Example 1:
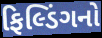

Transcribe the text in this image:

ફિલ્ડિંગનો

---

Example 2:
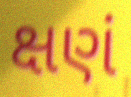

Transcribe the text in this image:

ક્ષણં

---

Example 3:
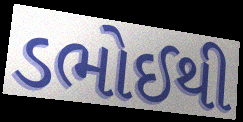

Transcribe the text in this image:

ડભોઈથી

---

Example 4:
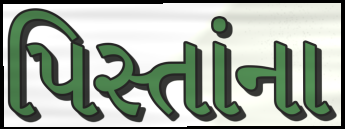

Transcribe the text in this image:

પિસ્તાંના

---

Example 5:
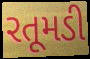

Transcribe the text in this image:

રતૂમડી